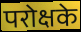
परोक्षके